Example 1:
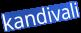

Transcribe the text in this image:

kandivali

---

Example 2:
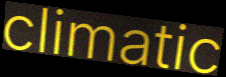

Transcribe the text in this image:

climatic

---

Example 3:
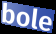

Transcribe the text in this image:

bole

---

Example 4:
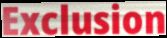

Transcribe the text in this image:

Exclusion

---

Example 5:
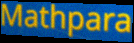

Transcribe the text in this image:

Mathpara